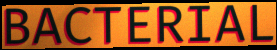
BACTERIAL